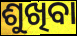
ଶୁଖିବା